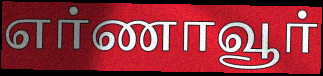
எர்ணாவூர்